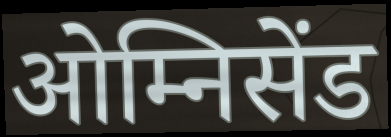
ओम्निसेंड